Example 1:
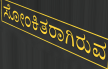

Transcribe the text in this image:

ಸೋಂಕಿತರಾಗಿರುವ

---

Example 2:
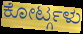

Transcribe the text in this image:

ಕೋರ್ಟ್ಗಳು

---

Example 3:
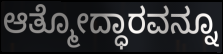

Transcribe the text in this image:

ಆತ್ಮೋದ್ಧಾರವನ್ನೂ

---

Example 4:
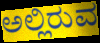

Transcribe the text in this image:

ಅಲ್ಲಿರುವ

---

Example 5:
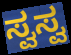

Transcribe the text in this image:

ಸ್ವಸ್ವ